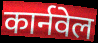
कार्नवेल